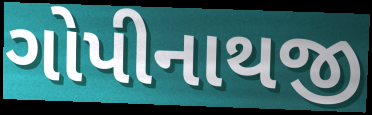
ગોપીનાથજી